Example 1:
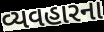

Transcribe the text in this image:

વ્યવહારના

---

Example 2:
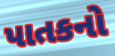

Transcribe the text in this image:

પાતકનો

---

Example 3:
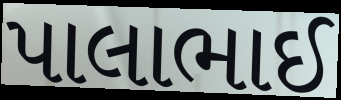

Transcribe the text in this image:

પાલાભાઈ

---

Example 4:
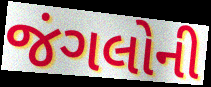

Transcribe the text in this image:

જંગલોની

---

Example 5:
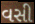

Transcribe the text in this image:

વસી